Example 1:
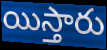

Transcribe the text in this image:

యిస్తారు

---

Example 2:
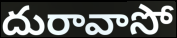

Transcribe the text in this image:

దురావాసో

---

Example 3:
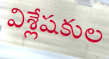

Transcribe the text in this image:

విశ్లేషకుల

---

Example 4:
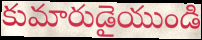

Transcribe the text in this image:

కుమారుడైయుండి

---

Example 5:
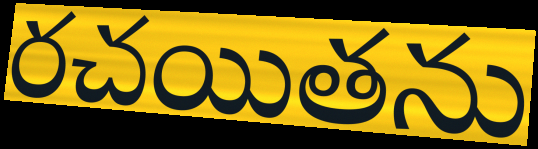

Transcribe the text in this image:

రచయితను